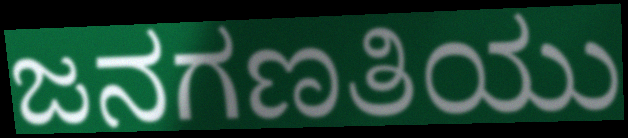
ಜನಗಣತಿಯು